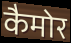
कैमोर